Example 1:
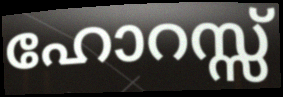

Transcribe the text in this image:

ഹോറസ്സ്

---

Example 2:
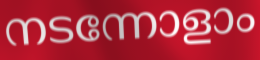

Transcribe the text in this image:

നടന്നോളാം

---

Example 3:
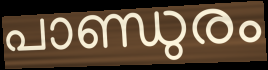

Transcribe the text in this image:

പാണ്ഡുരം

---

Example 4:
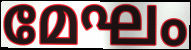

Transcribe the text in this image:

മേഘം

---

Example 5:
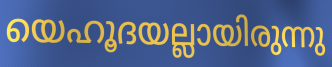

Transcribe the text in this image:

യെഹൂദയല്ലായിരുന്നു